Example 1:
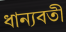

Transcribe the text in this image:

ধান্যবতী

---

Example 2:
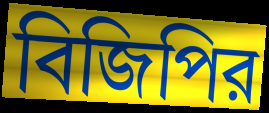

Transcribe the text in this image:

বিজিপির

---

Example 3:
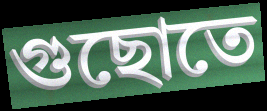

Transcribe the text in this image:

গুছোতে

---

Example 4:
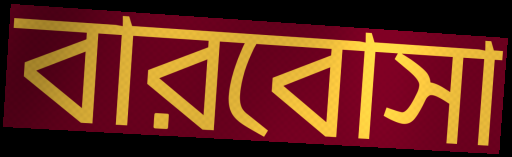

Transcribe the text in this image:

বারবোসা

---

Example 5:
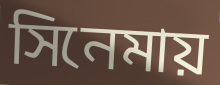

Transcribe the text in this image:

সিনেমায়